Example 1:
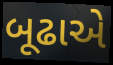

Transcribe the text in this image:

બૂઢાએ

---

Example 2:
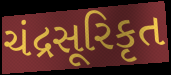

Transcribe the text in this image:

ચંદ્રસૂરિકૃત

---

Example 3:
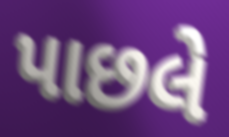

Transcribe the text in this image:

પાછલે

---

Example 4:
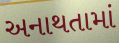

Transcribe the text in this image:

અનાથતામાં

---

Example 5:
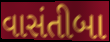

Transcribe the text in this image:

વાસંતીબા